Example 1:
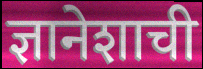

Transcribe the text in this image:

ज्ञानेशाची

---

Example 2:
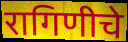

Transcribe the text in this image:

रागिणीचे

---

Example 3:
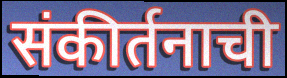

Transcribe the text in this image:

संकीर्तनाची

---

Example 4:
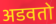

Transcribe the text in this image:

अडवतो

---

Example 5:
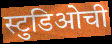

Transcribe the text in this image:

स्टुडिओची